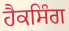
ਹੈਕਸਿੰਗ